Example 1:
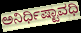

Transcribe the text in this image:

ಅನಿರ್ಧಿಷ್ಟಾವಧಿ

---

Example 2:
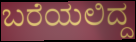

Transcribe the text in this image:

ಬರೆಯಲಿದ್ದ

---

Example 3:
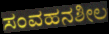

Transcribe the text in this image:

ಸಂವಹನಶೀಲ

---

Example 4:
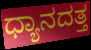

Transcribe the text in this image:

ಧ್ಯಾನದತ್ತ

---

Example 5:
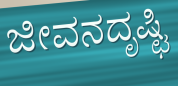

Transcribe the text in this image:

ಜೀವನದೃಷ್ಟಿ